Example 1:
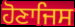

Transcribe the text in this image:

ਹੋਣਾਜਿਸ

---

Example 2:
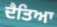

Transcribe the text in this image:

ਦੈਤਿਆ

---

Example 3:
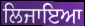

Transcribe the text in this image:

ਲਿਜਾਇਆ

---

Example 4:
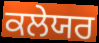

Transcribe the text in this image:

ਕਲੇਯਰ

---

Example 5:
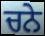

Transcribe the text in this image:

ਚਨੇ